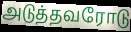
அடுத்தவரோடு